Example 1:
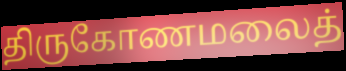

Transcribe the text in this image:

திருகோணமலைத்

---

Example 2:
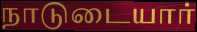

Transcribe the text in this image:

நாடுடையார்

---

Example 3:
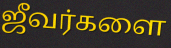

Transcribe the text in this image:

ஜீவர்களை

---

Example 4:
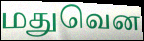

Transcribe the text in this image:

மதுவென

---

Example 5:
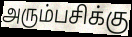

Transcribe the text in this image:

அரும்பசிக்கு